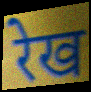
रेख